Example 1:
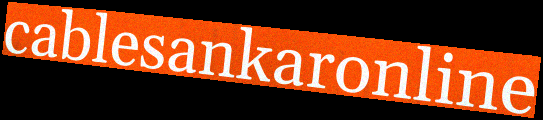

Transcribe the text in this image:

cablesankaronline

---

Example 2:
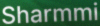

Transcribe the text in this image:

Sharmmi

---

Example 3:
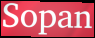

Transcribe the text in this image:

Sopan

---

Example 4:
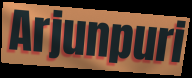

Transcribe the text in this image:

Arjunpuri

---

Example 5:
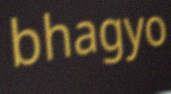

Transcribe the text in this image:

bhagyo